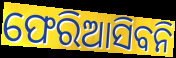
ଫେରିଆସିବନି